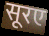
सूरए